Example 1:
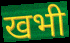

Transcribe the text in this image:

खभी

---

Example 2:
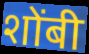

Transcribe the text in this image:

शोंबी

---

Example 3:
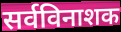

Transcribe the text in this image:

सर्वविनाशक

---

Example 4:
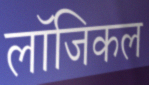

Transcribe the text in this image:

लॉजिकल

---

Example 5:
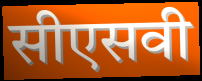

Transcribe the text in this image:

सीएसवी